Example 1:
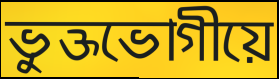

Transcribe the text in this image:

ভুক্তভোগীয়ে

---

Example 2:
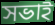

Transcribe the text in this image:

সভাই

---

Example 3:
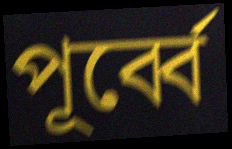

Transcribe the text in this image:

পূৰ্ব্বে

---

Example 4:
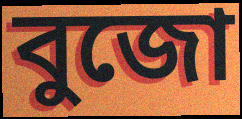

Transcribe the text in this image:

বুজো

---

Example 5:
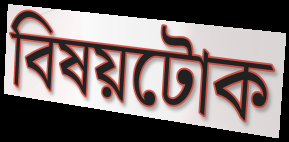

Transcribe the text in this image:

বিষয়টোক